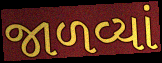
જાળવ્યાં